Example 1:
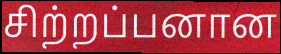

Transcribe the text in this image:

சிற்றப்பனான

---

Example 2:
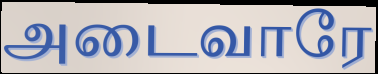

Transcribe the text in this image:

அடைவாரே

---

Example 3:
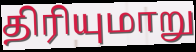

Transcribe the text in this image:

திரியுமாறு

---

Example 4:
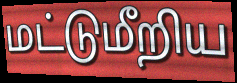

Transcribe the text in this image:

மட்டுமீறிய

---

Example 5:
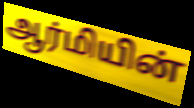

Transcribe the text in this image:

ஆர்மியின்